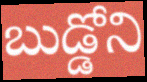
బుడ్డోని